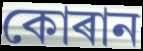
কোৰান